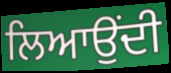
ਲਿਆਉਂਦੀ